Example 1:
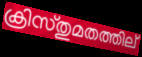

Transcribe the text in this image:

ക്രിസ്തുമതത്തില്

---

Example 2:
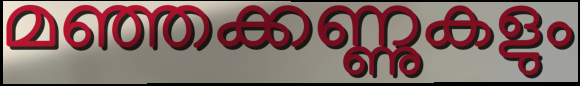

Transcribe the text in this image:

മഞ്ഞക്കണ്ണുകളും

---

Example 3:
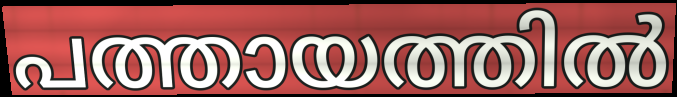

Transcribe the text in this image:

പത്തായത്തിൽ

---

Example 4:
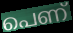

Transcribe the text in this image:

പെണ്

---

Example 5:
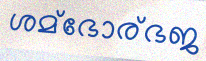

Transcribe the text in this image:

ശമ്ഭോര്ഭജ